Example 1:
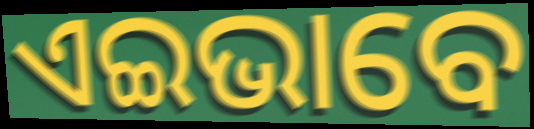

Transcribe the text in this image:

ଏଇଭାବେ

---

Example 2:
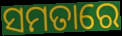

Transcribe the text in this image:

ସମତାରେ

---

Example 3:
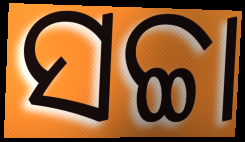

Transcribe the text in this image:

ସଚ୍ଚା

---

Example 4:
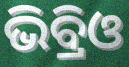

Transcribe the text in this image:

ଭିବ୍ରିଓ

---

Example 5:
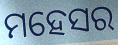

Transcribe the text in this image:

ମହେସର